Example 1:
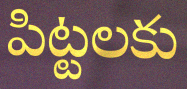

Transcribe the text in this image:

పిట్టలకు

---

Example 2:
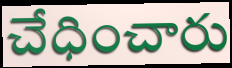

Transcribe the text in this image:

చేధించారు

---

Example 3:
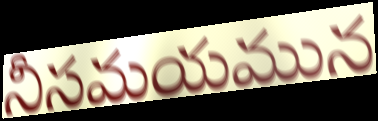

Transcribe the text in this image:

నీసమయమున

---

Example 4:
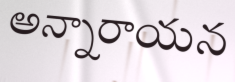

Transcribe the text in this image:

అన్నారాయన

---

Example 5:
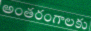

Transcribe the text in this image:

అంతరంగాలకు